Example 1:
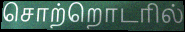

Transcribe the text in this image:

சொற்றொடரில்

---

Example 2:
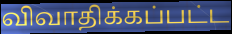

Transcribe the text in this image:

விவாதிக்கப்பட்ட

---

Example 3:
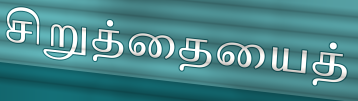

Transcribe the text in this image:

சிறுத்தையைத்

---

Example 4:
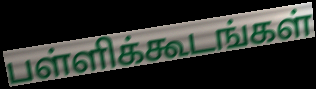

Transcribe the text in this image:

பள்ளிக்கூடங்கள்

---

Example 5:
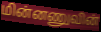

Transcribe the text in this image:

மின்னணுவின்